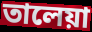
তালেয়া